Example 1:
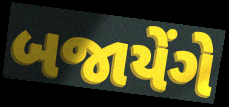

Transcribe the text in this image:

બજાયેંગે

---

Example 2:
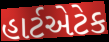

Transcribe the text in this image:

હાર્ટએટેક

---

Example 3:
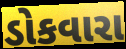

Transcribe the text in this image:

ડોકવારા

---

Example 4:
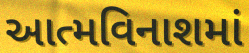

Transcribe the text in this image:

આત્મવિનાશમાં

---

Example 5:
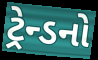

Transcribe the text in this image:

ટ્રેન્ડનો